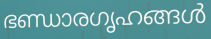
ഭണ്ഡാരഗൃഹങ്ങൾ